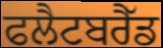
ਫਲੈਟਬਰੈੱਡ